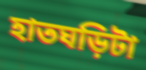
হাতঘড়িটা